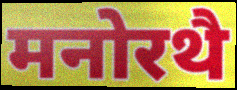
मनोरथै